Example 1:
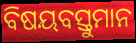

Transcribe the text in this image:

ବିଷୟବସ୍ତୁମାନ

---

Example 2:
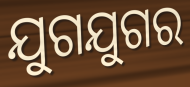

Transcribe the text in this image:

ଯୁଗଯୁଗର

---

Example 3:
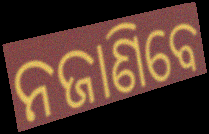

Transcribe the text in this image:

ନଜାଣିବେ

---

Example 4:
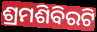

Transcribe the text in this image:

ଶ୍ରମଶିବିରଟି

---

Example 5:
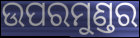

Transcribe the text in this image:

ଉପରମୁଣ୍ଡର